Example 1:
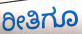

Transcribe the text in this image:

ರೀತಿಗೂ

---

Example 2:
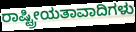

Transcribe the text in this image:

ರಾಷ್ಟ್ರೀಯತಾವಾದಿಗಳು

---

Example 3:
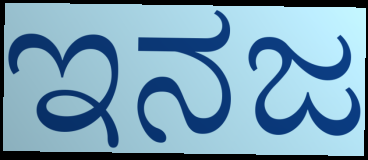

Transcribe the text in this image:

ಇನಜ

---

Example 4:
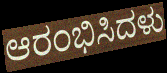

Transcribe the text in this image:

ಆರಂಭಿಸಿದಳು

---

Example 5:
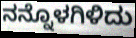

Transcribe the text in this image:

ನನ್ನೊಳಗಿಳಿದು